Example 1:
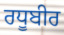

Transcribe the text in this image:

ਰਧੂਬੀਰ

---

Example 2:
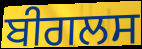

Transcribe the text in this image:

ਬੀਗਲਸ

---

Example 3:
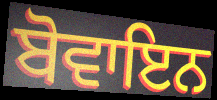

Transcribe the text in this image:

ਬੋਵਾਇਨ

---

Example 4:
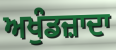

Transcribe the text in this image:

ਅਖੁੰਡਜ਼ਾਦਾ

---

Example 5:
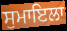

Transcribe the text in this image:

ਸੁਮਾਇਲਾ